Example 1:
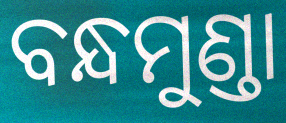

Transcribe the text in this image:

ବନ୍ଧମୁଣ୍ଡା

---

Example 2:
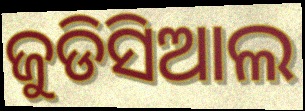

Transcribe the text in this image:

ଜୁଡିସିଆଲ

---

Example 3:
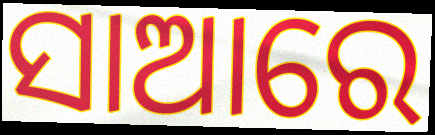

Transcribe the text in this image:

ସାଆରେ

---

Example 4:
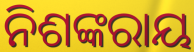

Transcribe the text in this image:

ନିଶଙ୍କରାୟ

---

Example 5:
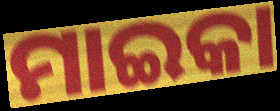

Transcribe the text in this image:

ମାଇକା